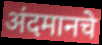
अंदमानचे